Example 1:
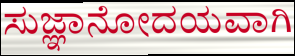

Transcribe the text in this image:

ಸುಜ್ಞಾನೋದಯವಾಗಿ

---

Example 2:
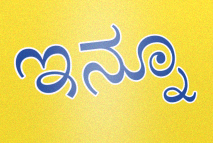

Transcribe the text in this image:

ಇನ್ನೂ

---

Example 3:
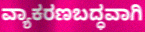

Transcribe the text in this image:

ವ್ಯಾಕರಣಬದ್ಧವಾಗಿ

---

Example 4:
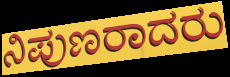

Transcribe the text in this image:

ನಿಪುಣರಾದರು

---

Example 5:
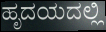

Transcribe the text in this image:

ಹೃದಯದಲ್ಲಿ